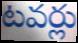
టవర్లు